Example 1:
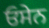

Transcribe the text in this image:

ਓਸੇਨ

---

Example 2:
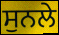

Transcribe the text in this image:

ਸੁਨਲੇ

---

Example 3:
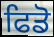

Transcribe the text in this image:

ਫਿਡੋ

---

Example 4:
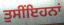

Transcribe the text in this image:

ਤੁਸੀਂਇਹਨਾਂ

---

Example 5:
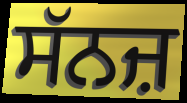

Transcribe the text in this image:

ਸੱਨਜ਼